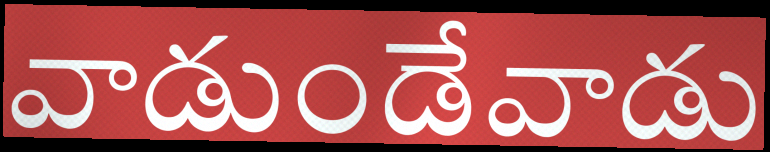
వాడుండేవాడు